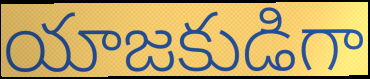
యాజకుడిగా